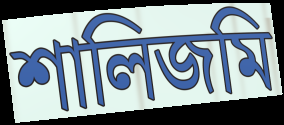
শালিজমি